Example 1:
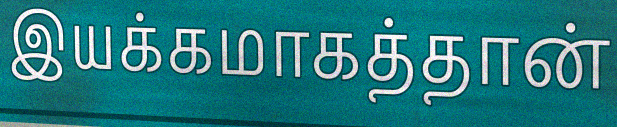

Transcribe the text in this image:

இயக்கமாகத்தான்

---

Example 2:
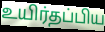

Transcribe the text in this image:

உயிர்தப்பிய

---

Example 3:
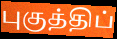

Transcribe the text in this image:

புகுத்திப்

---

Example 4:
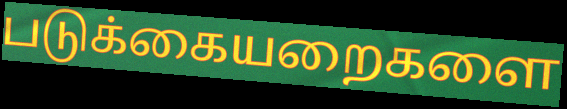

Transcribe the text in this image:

படுக்கையறைகளை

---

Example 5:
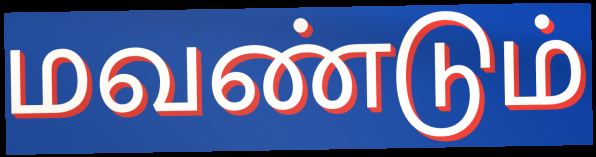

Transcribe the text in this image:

மவண்டும்